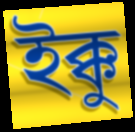
ইক্কু